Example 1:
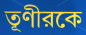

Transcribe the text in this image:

তূণীরকে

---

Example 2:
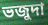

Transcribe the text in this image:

ভজুদা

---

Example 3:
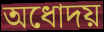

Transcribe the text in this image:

অধোদয়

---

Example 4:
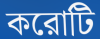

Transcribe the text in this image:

করোটি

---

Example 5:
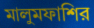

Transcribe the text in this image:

মালুমফাশির